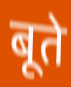
बूते